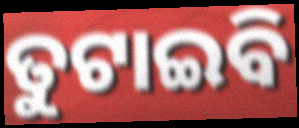
ତୁଟାଇବି